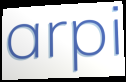
arpi